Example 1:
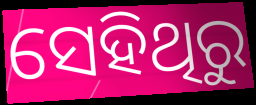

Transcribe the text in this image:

ସେହିଥିରୁ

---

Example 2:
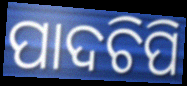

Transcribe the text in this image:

ପାଦଚିପି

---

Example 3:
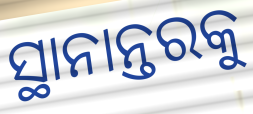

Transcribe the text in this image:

ସ୍ଥାନାନ୍ତରକୁ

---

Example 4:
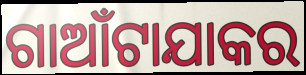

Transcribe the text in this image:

ଗାଆଁଟାଯାକର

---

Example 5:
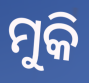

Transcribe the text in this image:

ମୁକି